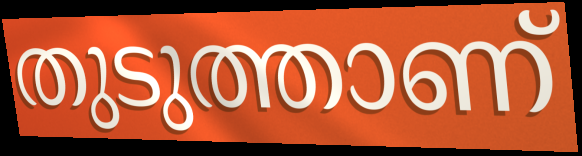
തുടുത്താണ്